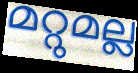
മറ്റുമല്ല